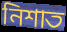
নিশাত